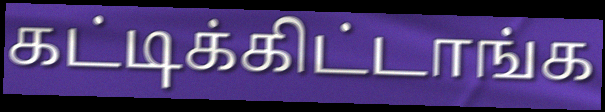
கட்டிக்கிட்டாங்க